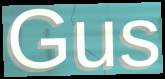
Gus